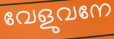
വേളുവനേ